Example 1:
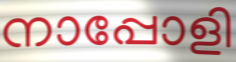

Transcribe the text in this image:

നാപ്പോളി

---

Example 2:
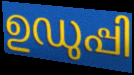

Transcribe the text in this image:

ഉഡുപ്പി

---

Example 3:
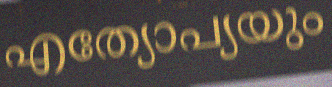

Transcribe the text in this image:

എത്യോപ്യയും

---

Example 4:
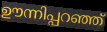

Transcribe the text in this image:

ഊന്നിപ്പറഞ്ഞ്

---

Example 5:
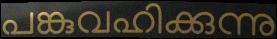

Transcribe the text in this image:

പങ്കുവഹിക്കുന്നു